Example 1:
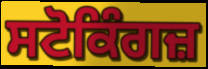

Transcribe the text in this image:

ਸਟੋਕਿੰਗਜ਼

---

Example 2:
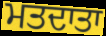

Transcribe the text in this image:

ਮਤਦਾਤਾ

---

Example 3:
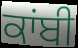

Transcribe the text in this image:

ਕਾਂਬੀ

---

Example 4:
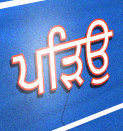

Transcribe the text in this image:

ਪੜਿਉ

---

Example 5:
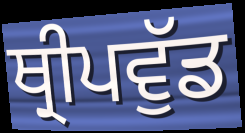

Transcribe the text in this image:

ਥ੍ਰੀਪਵੁੱਡ